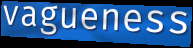
vagueness